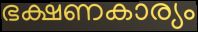
ഭക്ഷണകാര്യം